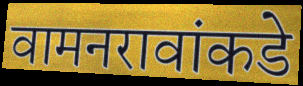
वामनरावांकडे